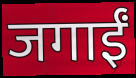
जगाईं